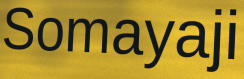
Somayaji